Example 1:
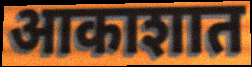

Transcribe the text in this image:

आकाशात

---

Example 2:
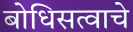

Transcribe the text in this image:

बोधिसत्वाचे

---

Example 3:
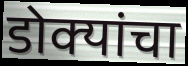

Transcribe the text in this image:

डोक्यांचा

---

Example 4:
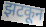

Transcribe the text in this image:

झटकून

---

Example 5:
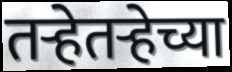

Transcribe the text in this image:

तर्‍हेतर्‍हेच्या